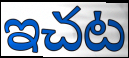
ఇచట